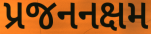
પ્રજનનક્ષમ